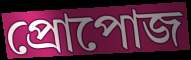
প্রোপোজ